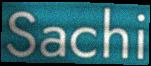
Sachi